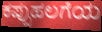
ಕಪ್ಪುಹಲಗೆಯ